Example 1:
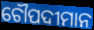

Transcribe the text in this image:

ଚୌପଦୀମାନ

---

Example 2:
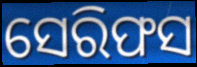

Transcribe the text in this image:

ସେରିଫସ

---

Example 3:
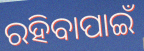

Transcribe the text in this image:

ରହିବାପାଇଁ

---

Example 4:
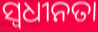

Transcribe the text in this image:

ସ୍ୱଧୀନତା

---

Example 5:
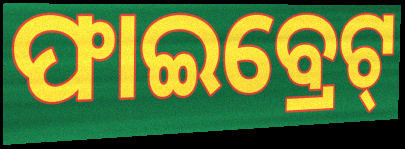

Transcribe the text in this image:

ଫାଇବ୍ରେଟ୍